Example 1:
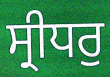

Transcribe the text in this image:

ਸ੍ਰੀਧਰੁ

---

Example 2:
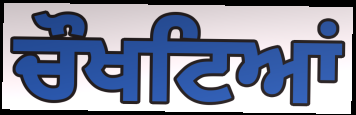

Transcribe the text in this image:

ਚੌਖਟਿਆਂ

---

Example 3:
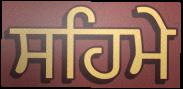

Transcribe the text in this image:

ਸਹਿਮੇ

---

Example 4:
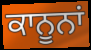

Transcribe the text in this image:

ਕਾਨੂਨਾਂ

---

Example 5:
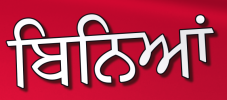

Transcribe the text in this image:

ਬਿਨਿਆਂ